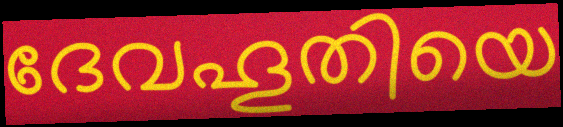
ദേവഹൂതിയെ